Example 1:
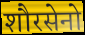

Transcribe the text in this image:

शौरसेनो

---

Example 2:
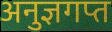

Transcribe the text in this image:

अनुज्ञगप्त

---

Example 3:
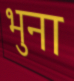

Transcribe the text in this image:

भुना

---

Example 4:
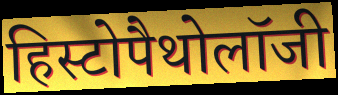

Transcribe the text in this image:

हिस्टोपैथोलॉजी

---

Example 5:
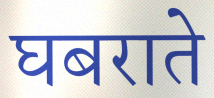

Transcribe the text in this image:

घबराते